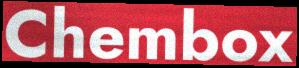
Chembox